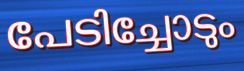
പേടിച്ചോടും